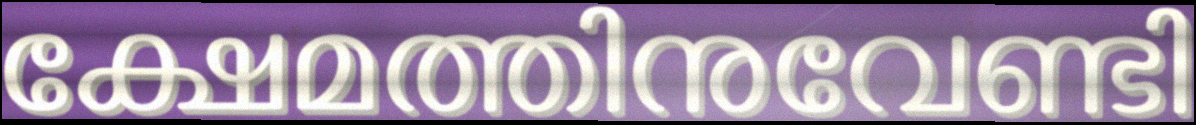
ക്ഷേമത്തിനുവേണ്ടി